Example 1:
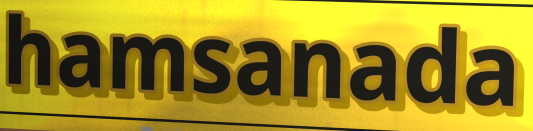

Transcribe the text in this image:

hamsanada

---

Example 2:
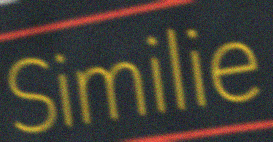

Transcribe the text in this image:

Similie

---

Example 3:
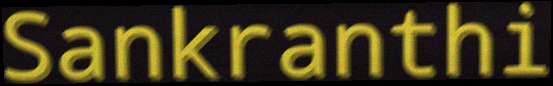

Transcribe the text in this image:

Sankranthi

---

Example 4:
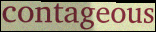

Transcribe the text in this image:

contageous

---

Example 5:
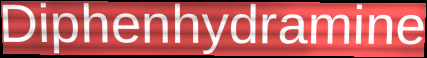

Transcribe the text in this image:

Diphenhydramine